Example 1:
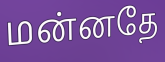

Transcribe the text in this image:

மன்னதே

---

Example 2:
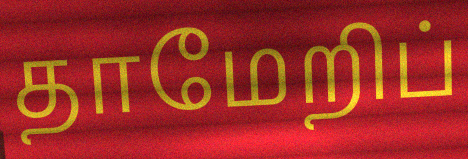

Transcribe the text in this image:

தாமேறிப்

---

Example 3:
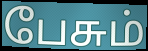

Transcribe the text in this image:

பேசும்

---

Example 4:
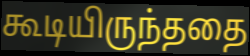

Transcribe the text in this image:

கூடியிருந்ததை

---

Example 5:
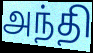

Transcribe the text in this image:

அந்தி